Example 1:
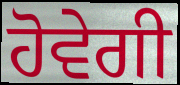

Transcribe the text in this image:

ਹੋਵੇਗੀ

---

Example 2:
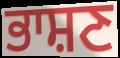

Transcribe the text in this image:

ਭਾਸ਼ਣ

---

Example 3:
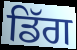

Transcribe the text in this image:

ਡਿੱਗ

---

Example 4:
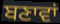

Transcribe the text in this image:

ਬਣਾਵਾਂ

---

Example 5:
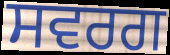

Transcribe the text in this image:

ਸਵਰਗ